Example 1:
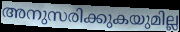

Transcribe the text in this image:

അനുസരിക്കുകയുമില്ല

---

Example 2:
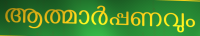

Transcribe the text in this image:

ആത്മാർപ്പണവും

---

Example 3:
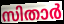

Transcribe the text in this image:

സിതാർ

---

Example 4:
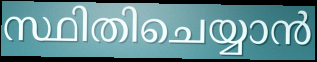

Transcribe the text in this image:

സ്ഥിതിചെയ്യാൻ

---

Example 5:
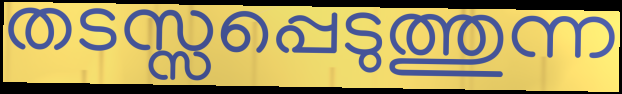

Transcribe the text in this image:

തടസ്സപ്പെടുത്തുന്ന